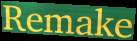
Remake